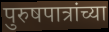
पुरुषपात्रांच्या